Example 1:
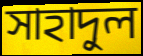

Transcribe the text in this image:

সাহাদুল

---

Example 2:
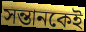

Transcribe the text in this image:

সন্তানকেই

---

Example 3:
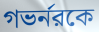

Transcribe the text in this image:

গভর্নরকে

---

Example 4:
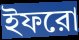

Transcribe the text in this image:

ইফরো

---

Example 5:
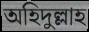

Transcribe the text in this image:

অহিদুল্লাহ